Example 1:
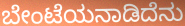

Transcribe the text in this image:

ಬೇಂಟೆಯನಾಡಿದೆನು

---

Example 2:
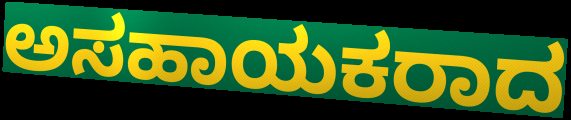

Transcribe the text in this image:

ಅಸಹಾಯಕರಾದ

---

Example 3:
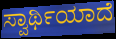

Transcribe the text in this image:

ಸ್ವಾರ್ಥಿಯಾದೆ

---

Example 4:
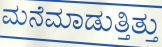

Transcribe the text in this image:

ಮನೆಮಾಡುತ್ತಿತ್ತು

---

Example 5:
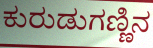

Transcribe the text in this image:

ಕುರುಡುಗಣ್ಣಿನ